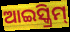
ଆଇସ୍କ୍ରିମ୍